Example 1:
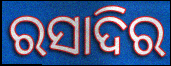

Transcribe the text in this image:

ରସାଦିର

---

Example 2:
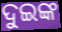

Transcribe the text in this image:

ଦୁଇଙ୍କ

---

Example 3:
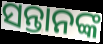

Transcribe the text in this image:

ସନ୍ତାନଙ୍କ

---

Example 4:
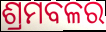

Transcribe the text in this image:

ଶ୍ରମବଳର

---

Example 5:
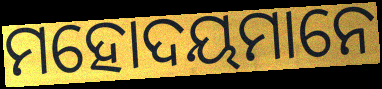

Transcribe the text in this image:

ମହୋଦୟମାନେ